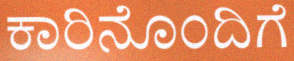
ಕಾರಿನೊಂದಿಗೆ